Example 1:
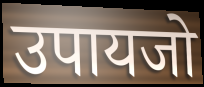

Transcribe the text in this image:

उपायजो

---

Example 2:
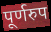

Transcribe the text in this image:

पूर्णरुप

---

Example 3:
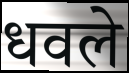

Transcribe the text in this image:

धवले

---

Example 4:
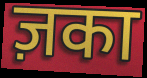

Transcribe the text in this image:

ज़का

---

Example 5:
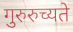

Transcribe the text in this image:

गुरुरुच्यते